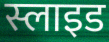
स्‍लाइड